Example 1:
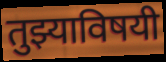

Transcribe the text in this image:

तुझ्याविषयी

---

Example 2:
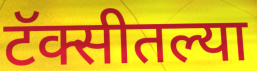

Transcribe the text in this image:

टॅक्सीतल्या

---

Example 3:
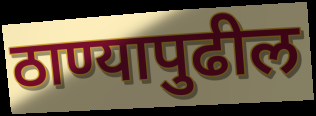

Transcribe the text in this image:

ठाण्यापुढील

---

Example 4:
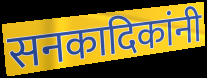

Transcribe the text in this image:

सनकादिकांनी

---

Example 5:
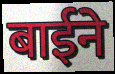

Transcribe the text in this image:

बाईने